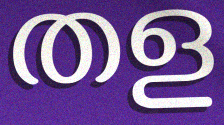
തള